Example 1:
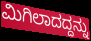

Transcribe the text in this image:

ಮಿಗಿಲಾದದ್ದನ್ನು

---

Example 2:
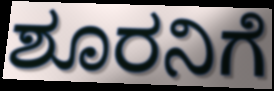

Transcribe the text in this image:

ಶೂರನಿಗೆ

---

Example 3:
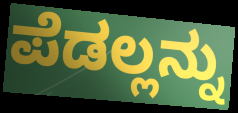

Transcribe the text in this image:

ಪೆಡಲ್ಲನ್ನು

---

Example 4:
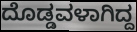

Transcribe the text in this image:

ದೊಡ್ಡವಳಾಗಿದ್ದ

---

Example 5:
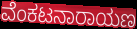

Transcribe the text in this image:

ವೆಂಕಟನಾರಾಯಣ